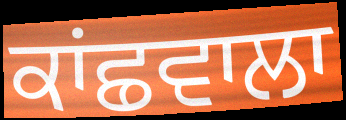
ਕਾਂਛਵਾਲਾ